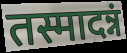
तस्मादन्नं